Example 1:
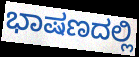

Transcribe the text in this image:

ಭಾಷಣದಲ್ಲಿ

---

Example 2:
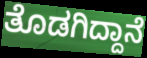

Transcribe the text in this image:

ತೊಡಗಿದ್ದಾನೆ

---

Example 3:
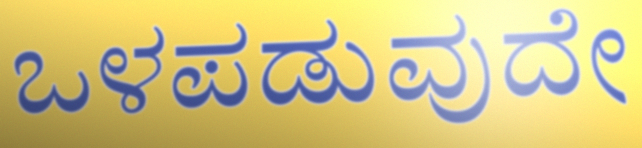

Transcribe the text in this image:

ಒಳಪಡುವುದೇ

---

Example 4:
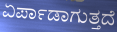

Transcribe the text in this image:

ಏರ್ಪಾಡಾಗುತ್ತದೆ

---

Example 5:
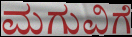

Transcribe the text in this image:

ಮಗುವಿಗೆ